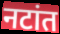
नटांत